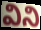
విని